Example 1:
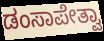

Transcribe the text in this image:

ಡಂಸಾಪೇತ್ವಾ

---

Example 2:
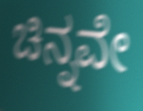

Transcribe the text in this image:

ಚಿನ್ನವೇ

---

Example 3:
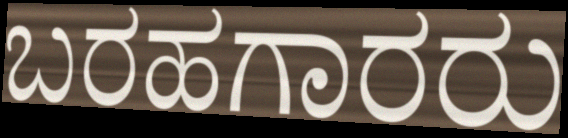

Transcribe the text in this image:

ಬರಹಗಾರರು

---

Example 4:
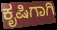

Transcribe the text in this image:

ಕೃಷಿಗಾಗಿ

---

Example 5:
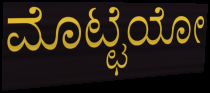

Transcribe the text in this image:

ಮೊಟ್ಟೆಯೋ